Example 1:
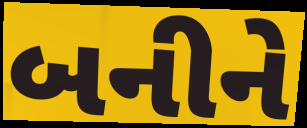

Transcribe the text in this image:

બનીને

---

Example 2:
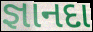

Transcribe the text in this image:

જ્ઞાનદા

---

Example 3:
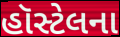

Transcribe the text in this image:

હૉસ્ટેલના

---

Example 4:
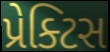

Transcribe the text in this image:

પ્રેક્ટિસ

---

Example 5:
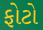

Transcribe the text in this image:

ફોટો